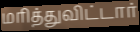
மரித்துவிட்டார்